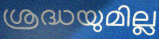
ശ്രദ്ധയുമില്ല